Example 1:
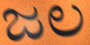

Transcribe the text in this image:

ಜಲ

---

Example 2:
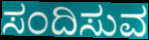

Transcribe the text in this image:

ಸಂದಿಸುವ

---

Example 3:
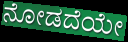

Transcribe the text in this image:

ನೋಡದೆಯೇ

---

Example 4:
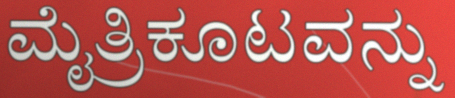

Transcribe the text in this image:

ಮೈತ್ರಿಕೂಟವನ್ನು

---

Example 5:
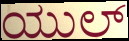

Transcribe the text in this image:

ಯುಲ್